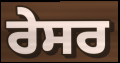
ਰੇਸਰ